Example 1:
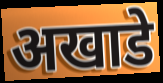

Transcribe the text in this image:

अखाडे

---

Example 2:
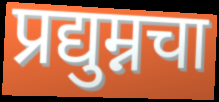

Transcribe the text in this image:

प्रद्युम्नचा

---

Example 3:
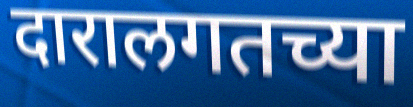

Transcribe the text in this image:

दारालगतच्या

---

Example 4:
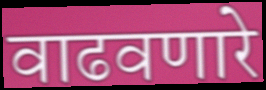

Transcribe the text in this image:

वाढवणारे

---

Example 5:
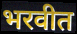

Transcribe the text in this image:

भरवीत